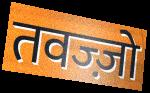
तवज्ज़ो